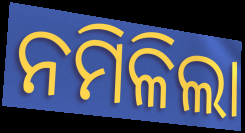
ନମିଳିଲା